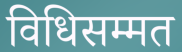
विधिसम्मत